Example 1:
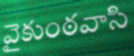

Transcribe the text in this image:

వైకుంఠవాసి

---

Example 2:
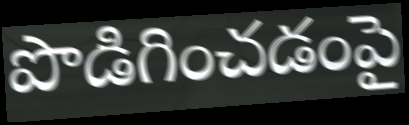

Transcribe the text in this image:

పొడిగించడంపై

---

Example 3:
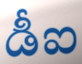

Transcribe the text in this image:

డీఐ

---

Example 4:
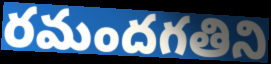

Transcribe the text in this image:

రమందగతిని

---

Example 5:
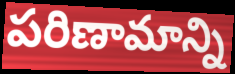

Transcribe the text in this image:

పరిణామాన్ని